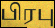
பிரபு